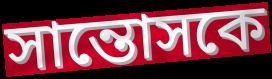
সান্তোসকে